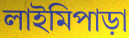
লাইমিপাড়া